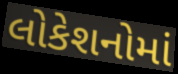
લોકેશનોમાં